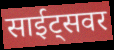
साईट्सवर